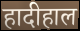
हादीहाल